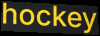
hockey